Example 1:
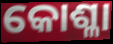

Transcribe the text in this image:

କୋଶ୍ଳା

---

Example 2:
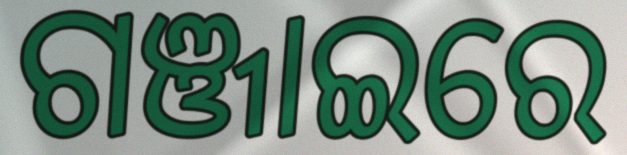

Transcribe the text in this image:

ଗଞ୍ଜାଇରେ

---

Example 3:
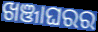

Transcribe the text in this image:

ଖଞ୍ଜାଘରର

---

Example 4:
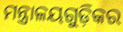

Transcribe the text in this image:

ମନ୍ତ୍ରାଳୟଗୁଡ଼ିକର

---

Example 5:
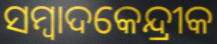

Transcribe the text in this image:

ସମ୍ୱାଦକେନ୍ଦ୍ରୀକ